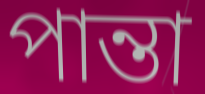
পান্তা